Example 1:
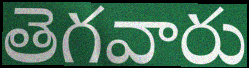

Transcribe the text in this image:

తెగవారు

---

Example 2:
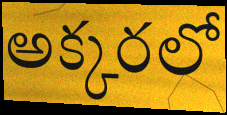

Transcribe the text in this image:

అక్కరలో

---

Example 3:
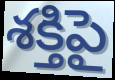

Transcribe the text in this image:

శక్తిపై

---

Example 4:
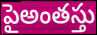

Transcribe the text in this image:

పైఅంతస్తు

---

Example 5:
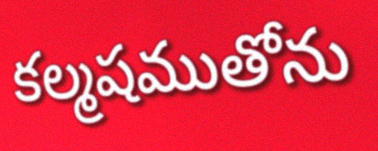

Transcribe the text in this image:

కల్మషముతోను